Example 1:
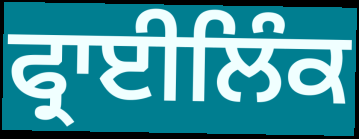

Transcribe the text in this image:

ਫ੍ਰਾਈਲਿੰਕ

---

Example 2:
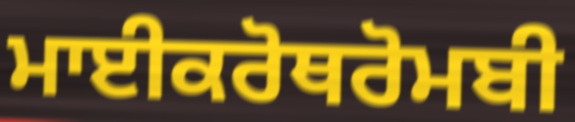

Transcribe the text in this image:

ਮਾਈਕਰੋਥਰੋਮਬੀ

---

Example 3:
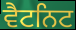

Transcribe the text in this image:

ਵੈਟਨਿਟ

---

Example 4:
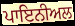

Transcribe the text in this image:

ਪਾਇਨੀਅਲ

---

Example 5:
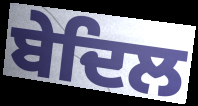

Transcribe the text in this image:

ਬੇਦਿਲ